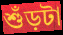
শুঁড়টা